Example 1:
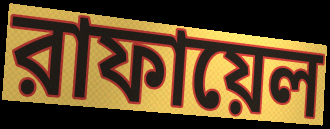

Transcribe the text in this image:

রাফায়েল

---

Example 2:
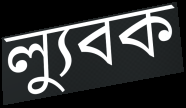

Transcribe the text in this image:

ল্যুবক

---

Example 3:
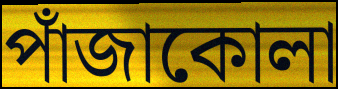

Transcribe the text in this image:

পাঁজাকোলা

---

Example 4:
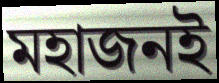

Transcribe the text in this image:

মহাজনই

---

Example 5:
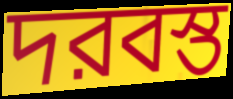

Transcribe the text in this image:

দরবস্ত